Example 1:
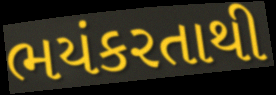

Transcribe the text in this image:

ભયંકરતાથી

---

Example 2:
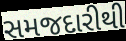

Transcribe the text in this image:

સમજદારીથી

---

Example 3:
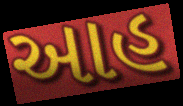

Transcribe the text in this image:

આહ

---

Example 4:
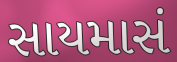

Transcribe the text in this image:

સાયમાસં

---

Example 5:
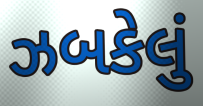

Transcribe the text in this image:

ઝબકેલું